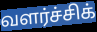
வளர்ச்சிக்